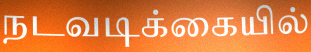
நடவடிக்கையில்